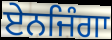
ਏਨਜਿੰਗਾ